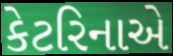
કેટરિનાએ